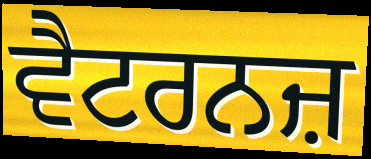
ਵੈਟਰਨਜ਼